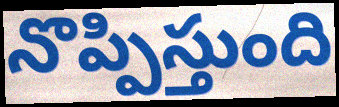
నొప్పిస్తుంది